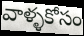
వాళ్ళకోసం